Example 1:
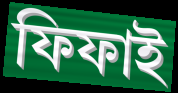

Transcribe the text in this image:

ফিফাই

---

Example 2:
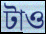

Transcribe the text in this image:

টাও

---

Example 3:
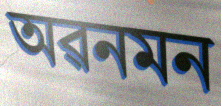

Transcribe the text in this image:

অৱনমন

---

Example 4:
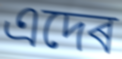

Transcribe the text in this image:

এদেৰ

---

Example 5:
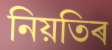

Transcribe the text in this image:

নিয়তিৰ